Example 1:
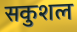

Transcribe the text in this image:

सकुशल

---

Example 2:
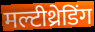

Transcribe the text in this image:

मल्टीथ्रेडिंग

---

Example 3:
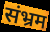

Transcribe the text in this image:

संभ्रम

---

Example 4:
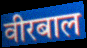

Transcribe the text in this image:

वीरबाल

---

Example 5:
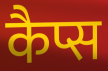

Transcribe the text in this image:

कैप्स